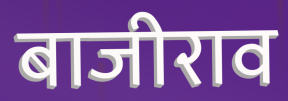
बाजीराव